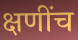
क्षणींच